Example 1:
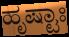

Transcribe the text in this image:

ಹೃಷ್ಟಾಃ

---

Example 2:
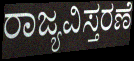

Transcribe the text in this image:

ರಾಜ್ಯವಿಸ್ತರಣೆ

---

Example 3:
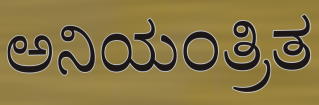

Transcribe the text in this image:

ಅನಿಯಂತ್ರಿತ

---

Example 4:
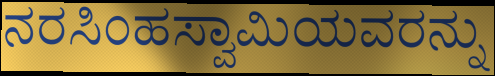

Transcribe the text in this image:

ನರಸಿಂಹಸ್ವಾಮಿಯವರನ್ನು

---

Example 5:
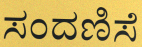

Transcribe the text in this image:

ಸಂದಣಿಸೆ